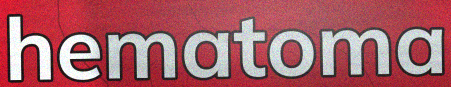
hematoma